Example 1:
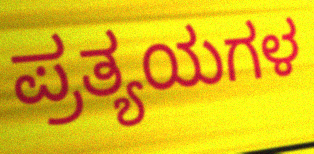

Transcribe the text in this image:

ಪ್ರತ್ಯಯಗಳ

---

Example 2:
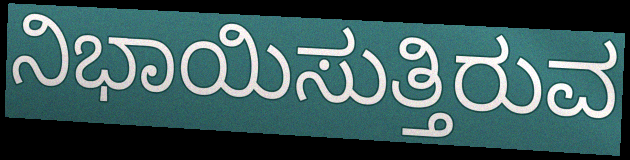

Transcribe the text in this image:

ನಿಭಾಯಿಸುತ್ತಿರುವ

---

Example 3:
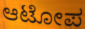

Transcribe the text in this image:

ಆಟೋಪ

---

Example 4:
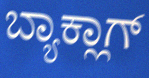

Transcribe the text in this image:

ಬ್ಯಾಕ್ಲಾಗ್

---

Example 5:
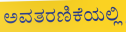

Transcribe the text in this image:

ಅವತರಣಿಕೆಯಲ್ಲಿ